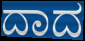
ದಾದ